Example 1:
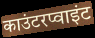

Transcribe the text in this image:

काउंटरप्वाइंट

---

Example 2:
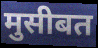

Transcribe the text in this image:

मुसीबत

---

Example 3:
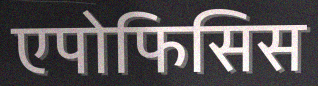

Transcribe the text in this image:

एपोफिसिस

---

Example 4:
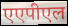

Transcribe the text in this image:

एएपीएल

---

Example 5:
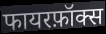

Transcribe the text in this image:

फायरफ़ॉक्स